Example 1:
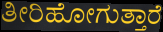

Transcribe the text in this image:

ತೀರಿಹೋಗುತ್ತಾರೆ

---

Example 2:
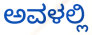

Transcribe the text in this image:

ಅವಳಲ್ಲಿ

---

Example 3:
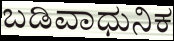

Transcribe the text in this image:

ಬಡಿವಾಧುನಿಕ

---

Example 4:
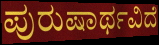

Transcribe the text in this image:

ಪುರುಷಾರ್ಥವಿದೆ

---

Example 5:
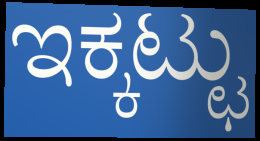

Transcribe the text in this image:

ಇಕ್ಕಟ್ಟು